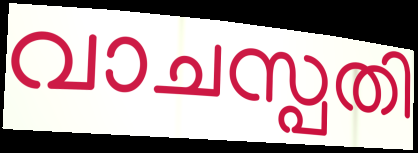
വാചസ്പതി